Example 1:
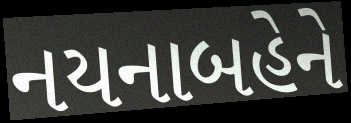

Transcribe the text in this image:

નયનાબહેને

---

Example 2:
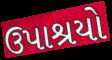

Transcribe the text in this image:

ઉપાશ્રયો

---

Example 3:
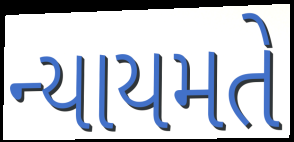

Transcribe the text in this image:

ન્યાયમતે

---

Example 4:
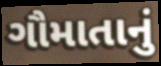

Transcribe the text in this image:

ગૌમાતાનું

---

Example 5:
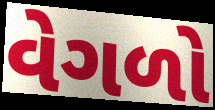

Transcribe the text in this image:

વેગળો